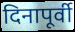
दिनापूर्वी